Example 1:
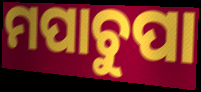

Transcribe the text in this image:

ମପାଚୁପା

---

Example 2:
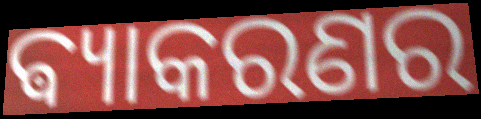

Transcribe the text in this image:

ଵ୍ୟାକରଣର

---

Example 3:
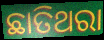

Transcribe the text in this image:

ଛାତିଥରା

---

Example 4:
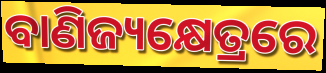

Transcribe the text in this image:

ବାଣିଜ୍ୟକ୍ଷେତ୍ରରେ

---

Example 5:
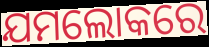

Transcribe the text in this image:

ଯମଲୋକରେ